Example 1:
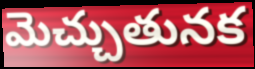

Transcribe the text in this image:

మెచ్చుతునక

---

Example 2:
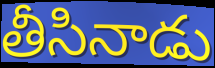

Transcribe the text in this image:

తీసినాడు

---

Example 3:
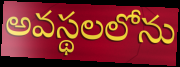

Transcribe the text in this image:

అవస్థలలోను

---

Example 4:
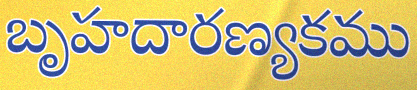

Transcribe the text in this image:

బృహదారణ్యకము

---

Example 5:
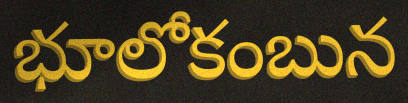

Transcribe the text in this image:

భూలోకంబున